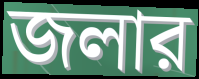
জলার